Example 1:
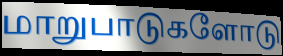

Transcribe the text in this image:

மாறுபாடுகளோடு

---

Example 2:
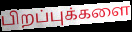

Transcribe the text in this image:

பிறப்புக்களை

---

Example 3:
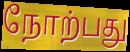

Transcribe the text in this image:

நோற்பது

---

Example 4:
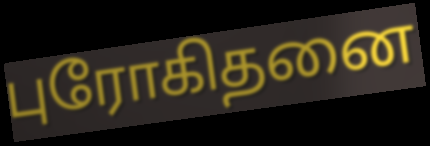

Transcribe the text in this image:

புரோகிதனை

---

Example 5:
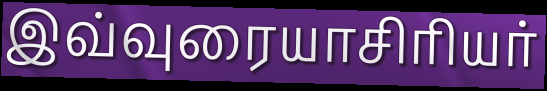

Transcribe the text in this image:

இவ்வுரையாசிரியர்